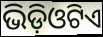
ଭିଡ଼ିଓଟିଏ